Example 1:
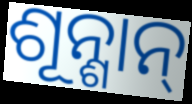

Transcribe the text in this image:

ଶୂନ୍ଶାନ୍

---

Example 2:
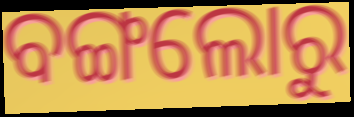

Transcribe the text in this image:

ବଙ୍ଗଲୋରୁ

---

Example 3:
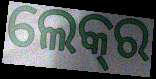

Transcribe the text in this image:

ଲେକ୍‍ର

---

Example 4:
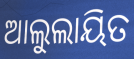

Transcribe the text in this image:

ଆଲୁଲାୟିତ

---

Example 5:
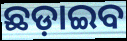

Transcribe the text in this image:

ଛଡ଼ାଇବ